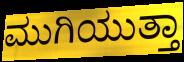
ಮುಗಿಯುತ್ತಾ